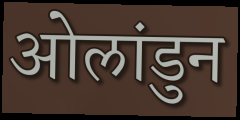
ओलांडुन